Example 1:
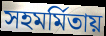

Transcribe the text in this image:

সহমর্মিতায়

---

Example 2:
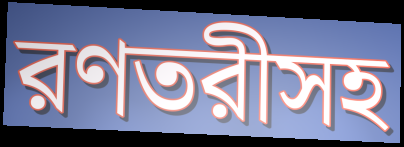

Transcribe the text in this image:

রণতরীসহ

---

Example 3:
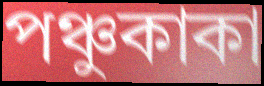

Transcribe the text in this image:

পঞ্চুকাকা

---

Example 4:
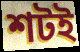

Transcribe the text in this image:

শটই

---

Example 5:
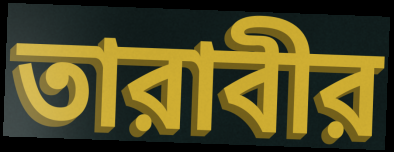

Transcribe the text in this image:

তারাবীর